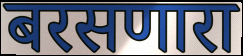
बरसणारा